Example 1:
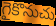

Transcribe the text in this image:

గైకొనుచు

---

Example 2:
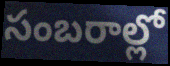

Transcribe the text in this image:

సంబరాల్లో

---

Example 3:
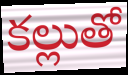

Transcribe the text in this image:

కల్లుతో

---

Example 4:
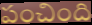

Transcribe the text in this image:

పంచింది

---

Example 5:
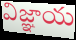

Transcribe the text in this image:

విజ్ఞాయ